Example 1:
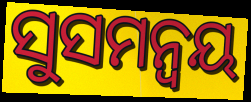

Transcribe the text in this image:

ସୁସମନ୍ଵୟ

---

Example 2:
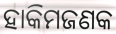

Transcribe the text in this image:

ହାକିମଜଣକ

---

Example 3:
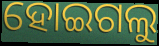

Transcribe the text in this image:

ହୋଇଗଲୁ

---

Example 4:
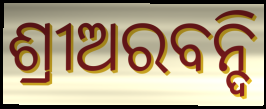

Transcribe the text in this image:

ଶ୍ରୀଅରବନ୍ଦି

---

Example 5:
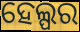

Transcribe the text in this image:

ହେଲ୍ପର